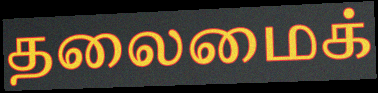
தலைமைக்